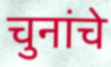
चुनांचे